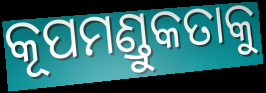
କୂପମଣ୍ଡୁକତାକୁ